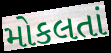
મોકલતાં